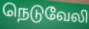
நெடுவேலி